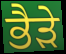
ਭੈਡ਼ੇ